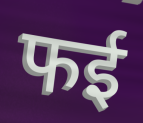
फई